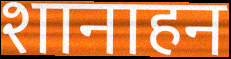
शानाहन